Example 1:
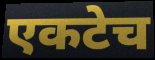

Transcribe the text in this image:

एकटेच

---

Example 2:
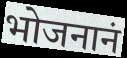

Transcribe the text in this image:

भोजनानं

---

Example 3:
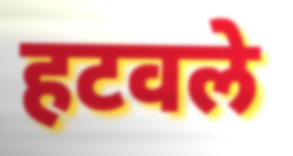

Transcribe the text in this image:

हटवले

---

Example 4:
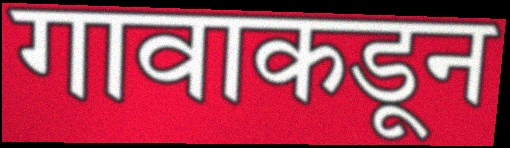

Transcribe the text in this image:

गावाकडून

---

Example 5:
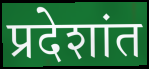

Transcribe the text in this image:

प्रदेशांत